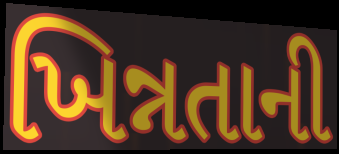
ખિન્નતાની